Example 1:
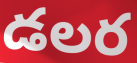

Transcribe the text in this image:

డలర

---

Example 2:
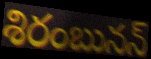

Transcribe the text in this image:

శిరంబునన్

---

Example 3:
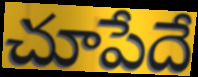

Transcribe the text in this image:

చూపేదే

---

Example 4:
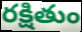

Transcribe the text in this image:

రక్షితుం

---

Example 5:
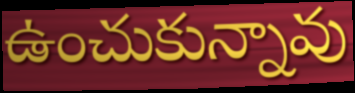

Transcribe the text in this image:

ఉంచుకున్నావు